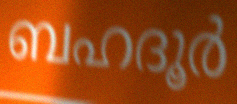
ബഹദൂർ